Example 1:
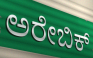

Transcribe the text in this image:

ಅರೇಬಿಕ್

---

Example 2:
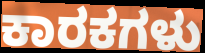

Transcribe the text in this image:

ಕಾರಕಗಳು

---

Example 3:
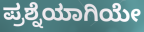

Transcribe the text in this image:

ಪ್ರಶ್ನೆಯಾಗಿಯೇ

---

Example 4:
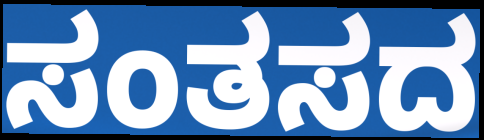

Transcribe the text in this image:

ಸಂತಸದ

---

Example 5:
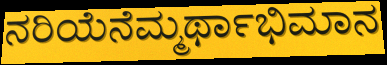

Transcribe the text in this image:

ನರಿಯೆನೆಮ್ಮರ್ಥಾಭಿಮಾನ